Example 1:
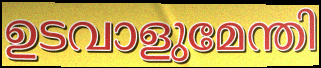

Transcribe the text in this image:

ഉടവാളുമേന്തി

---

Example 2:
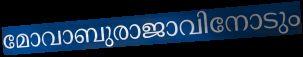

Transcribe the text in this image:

മോവാബുരാജാവിനോടും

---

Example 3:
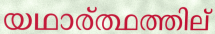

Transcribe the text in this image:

യഥാര്ത്ഥത്തില്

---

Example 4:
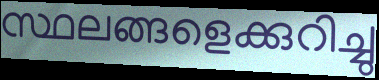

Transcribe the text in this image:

സ്ഥലങ്ങളെക്കുറിച്ചു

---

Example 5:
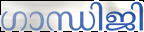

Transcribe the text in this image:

ഗാന്ധിജി